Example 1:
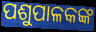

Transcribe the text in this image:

ପଶୁପାଳକଙ୍କ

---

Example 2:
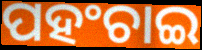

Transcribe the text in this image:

ପହଂଚାଇ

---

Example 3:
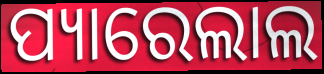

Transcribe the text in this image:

ପ୍ୟାରେଲାଲ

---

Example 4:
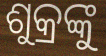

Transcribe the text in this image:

ଶୁକ୍ରଙ୍କୁ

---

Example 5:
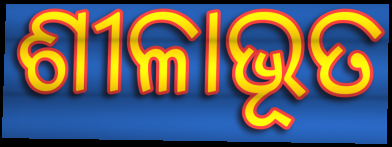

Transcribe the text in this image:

ଶୀଳାଭୂତ